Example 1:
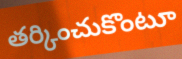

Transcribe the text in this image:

తర్కించుకొంటూ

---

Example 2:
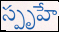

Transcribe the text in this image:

స్పృహే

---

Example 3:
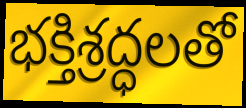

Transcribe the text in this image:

భక్తిశ్రద్ధలతో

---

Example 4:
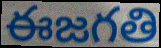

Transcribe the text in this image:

ఈజగతి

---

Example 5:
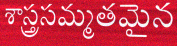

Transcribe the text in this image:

శాస్త్రసమ్మతమైన